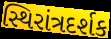
સ્થિરાંત્રદર્શક